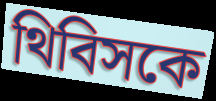
থিবিসকে